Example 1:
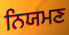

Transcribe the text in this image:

ਨਿਯਮਣ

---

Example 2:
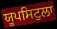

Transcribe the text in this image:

ਯੂਪਸਿਟੁਲਾ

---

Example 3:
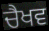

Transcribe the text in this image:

ਚੈਖਵ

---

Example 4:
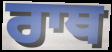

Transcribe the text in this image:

ਰਾਥ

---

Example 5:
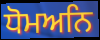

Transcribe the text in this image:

ਧੋਮਅਨਿ